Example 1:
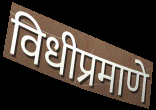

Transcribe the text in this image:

विधीप्रमाणे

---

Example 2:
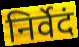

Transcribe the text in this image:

निर्वेदं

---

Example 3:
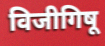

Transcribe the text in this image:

विजीगिषू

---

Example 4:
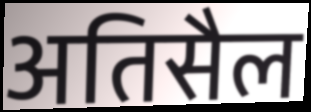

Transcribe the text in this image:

अतिसैल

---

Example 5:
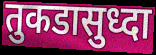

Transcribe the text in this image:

तुकडासुध्दा